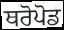
ਥਰੋਪੋਡ